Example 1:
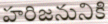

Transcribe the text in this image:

హరిజనునికి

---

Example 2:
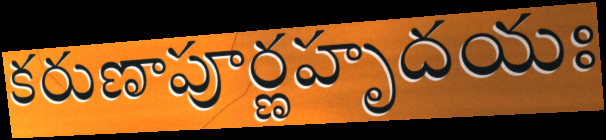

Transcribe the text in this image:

కరుణాపూర్ణహృదయః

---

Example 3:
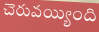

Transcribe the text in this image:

చెరువయ్యింది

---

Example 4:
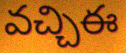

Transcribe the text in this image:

వచ్చిఈ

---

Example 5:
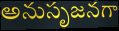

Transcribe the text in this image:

అనుసృజనగా